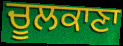
ਚੂਲਕਾਣਾ